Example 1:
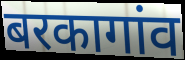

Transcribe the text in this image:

बरकागांव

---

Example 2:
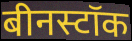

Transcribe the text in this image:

बीनस्टॉक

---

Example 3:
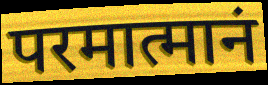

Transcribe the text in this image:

परमात्मानं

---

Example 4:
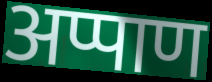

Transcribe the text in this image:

अप्पाण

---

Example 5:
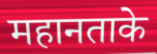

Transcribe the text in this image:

महानताके